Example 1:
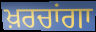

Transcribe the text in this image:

ਖ਼ਰਚਾਂਗਾ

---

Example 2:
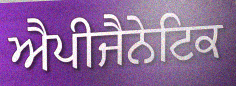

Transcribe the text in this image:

ਐਪੀਜੈਨੇਟਿਕ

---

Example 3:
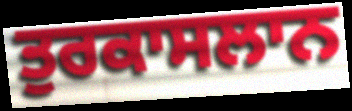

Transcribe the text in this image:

ਤੁਰਕਾਸਲਾਨ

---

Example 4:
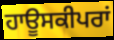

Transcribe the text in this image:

ਹਾਊਸਕੀਪਰਾਂ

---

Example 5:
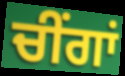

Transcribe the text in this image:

ਚੀਂਗਾਂ